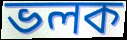
ভলক